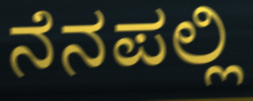
ನೆನಪಲ್ಲಿ